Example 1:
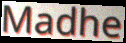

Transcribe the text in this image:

Madhe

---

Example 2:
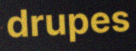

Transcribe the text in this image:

drupes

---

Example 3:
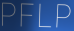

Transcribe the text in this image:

PFLP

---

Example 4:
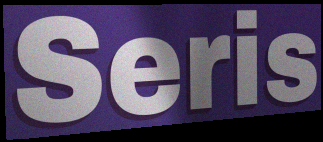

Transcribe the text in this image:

Seris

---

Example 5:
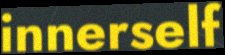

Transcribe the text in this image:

innerself